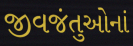
જીવજંતુઓનાં